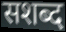
सशब्द